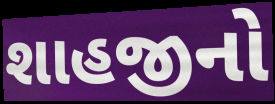
શાહજીનો